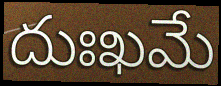
దుఃఖమే